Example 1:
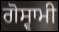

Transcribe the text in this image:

ਗੋਸ੍ਵਾਮੀ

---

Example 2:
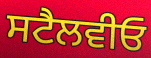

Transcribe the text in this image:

ਸਟੈਲਵੀਓ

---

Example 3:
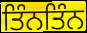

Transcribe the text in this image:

ਤਿੰਨਤਿੰਨ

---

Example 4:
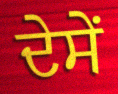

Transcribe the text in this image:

ਦੇਸੇਂ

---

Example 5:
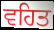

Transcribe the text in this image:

ਵਹਿਤ